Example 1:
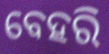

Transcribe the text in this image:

ବେହରି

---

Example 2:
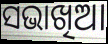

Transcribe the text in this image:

ସଭାଖିଆ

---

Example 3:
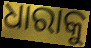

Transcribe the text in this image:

ଧାରାକୁ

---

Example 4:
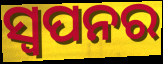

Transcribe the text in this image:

ସ୍ୱପନର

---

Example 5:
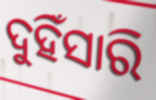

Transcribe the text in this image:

ଦୁହିଁସାରି